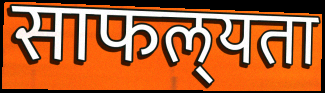
साफल्यता